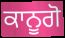
ਕਾਨੂਗੋ